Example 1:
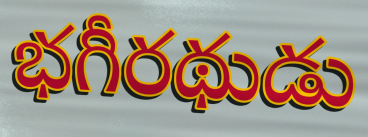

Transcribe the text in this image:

భగీరథుడు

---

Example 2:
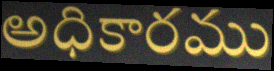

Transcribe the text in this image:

అధికారము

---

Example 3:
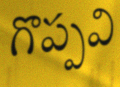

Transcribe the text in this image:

గొప్పవి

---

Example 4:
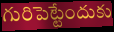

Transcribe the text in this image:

గురిపెట్టేందుకు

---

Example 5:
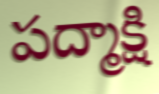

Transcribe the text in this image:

పద్మాక్షి